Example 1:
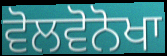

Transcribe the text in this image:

ਵੋਲਵੋਨੋਖਾ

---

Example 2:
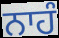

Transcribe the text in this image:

ਨਾਹੰ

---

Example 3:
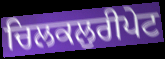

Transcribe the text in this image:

ਚਿਲਕਲੁਰੀਪੇਟ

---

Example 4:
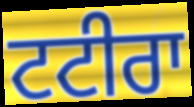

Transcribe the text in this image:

ਟਟੀਰਾ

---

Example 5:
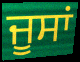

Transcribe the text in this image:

ਜੂਸਾਂ